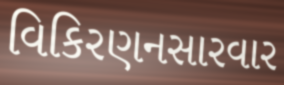
વિકિરણનસારવાર